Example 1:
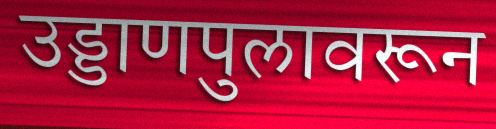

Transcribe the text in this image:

उड्डाणपुलावरून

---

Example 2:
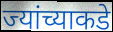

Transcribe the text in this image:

ज्यांच्याकडे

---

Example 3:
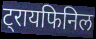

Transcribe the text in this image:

ट्रायफिनिल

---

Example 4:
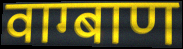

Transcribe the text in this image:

वाग्बाण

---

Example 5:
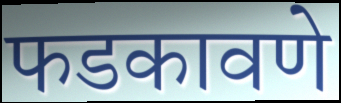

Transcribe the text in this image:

फडकावणे